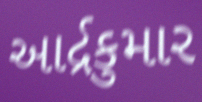
આર્દ્રકુમાર